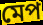
মেপ